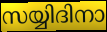
സയ്യിദിനാ